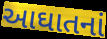
આઘાતનાં